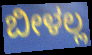
ಬೀಳಲ್ಲ